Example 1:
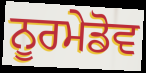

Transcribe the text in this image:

ਨੂਰਮੇਡੋਵ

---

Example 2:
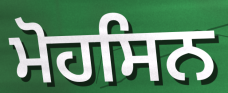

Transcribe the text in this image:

ਮੋਹਸਿਨ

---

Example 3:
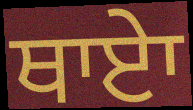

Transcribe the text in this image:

ਥਾਏਾ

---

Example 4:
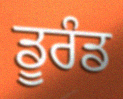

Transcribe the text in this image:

ਡੂਰੰਡ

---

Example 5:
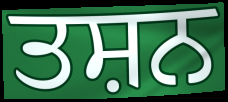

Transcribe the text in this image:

ਤਸ਼ਨ